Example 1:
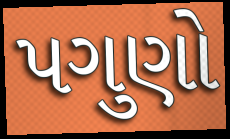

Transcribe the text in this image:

પગુણો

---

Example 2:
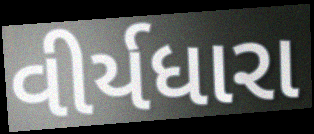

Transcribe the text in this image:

વીર્યધારા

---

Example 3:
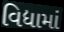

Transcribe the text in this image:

વિદ્યામાં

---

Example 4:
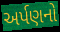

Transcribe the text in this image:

અર્પણનો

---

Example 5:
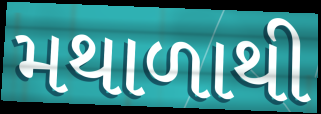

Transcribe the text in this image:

મથાળાથી